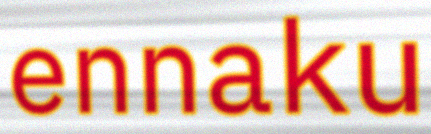
ennaku